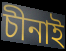
চীনাই